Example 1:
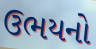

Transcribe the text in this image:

ઉભયનો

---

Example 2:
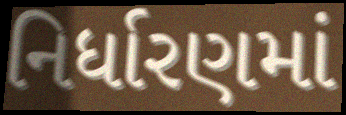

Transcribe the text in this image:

નિર્ધારણમાં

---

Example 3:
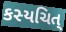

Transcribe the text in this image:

કસ્યચિત્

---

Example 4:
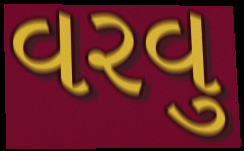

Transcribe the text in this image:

વરવુ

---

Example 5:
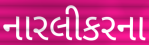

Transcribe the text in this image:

નારલીકરના